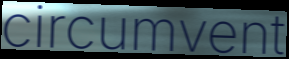
circumvent